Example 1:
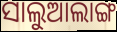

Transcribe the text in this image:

ସାଲୁଆଲାଙ୍ଗ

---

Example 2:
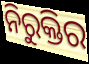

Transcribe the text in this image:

ନିରୁକ୍ତିର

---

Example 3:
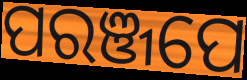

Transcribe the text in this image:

ପରଞ୍ଜପେ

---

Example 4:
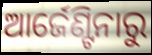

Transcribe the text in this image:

ଆର୍ଜେଣ୍ଟିନାରୁ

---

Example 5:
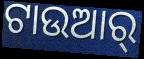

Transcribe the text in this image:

ଟାଉଆର୍